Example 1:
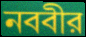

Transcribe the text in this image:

নববীর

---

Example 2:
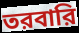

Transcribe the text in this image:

তরবারি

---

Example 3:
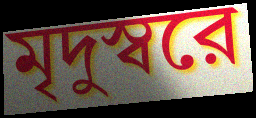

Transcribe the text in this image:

মৃদুস্বরে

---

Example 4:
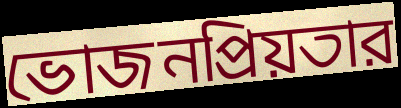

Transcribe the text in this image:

ভোজনপ্রিয়তার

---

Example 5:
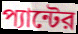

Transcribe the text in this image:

প্যান্টের